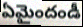
ఏమైందండీ